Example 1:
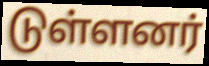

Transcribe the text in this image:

டுள்ளனர்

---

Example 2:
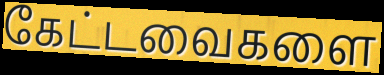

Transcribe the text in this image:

கேட்டவைகளை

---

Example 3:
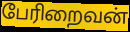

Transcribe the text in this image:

பேரிறைவன்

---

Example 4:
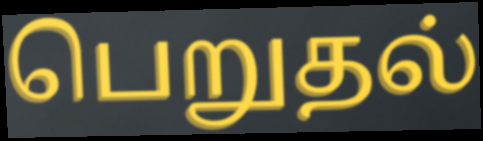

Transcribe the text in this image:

பெறுதல்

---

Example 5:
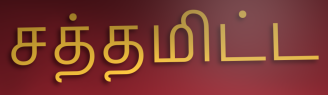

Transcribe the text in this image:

சத்தமிட்ட